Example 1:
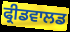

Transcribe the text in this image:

ਫ੍ਰੀਡਵਾਲਡ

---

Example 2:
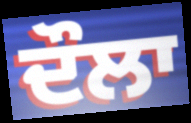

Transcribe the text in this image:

ਦੌਲਾ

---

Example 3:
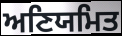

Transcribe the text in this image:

ਅਣਿਯਮਿਤ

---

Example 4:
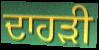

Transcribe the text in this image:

ਦਾਹੜੀ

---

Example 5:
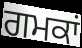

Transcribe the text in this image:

ਗਮਕਾਂ